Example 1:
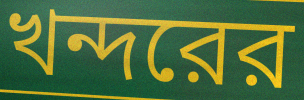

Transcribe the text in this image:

খন্দরের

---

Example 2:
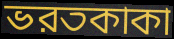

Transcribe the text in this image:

ভরতকাকা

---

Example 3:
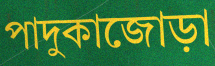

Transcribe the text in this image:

পাদুকাজোড়া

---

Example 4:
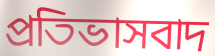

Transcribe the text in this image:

প্রতিভাসবাদ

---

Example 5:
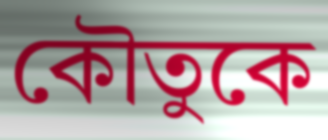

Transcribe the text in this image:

কৌতুকে